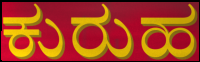
ಕುರುಹ